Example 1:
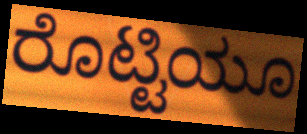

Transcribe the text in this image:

ರೊಟ್ಟಿಯೂ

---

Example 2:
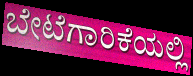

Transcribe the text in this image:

ಬೇಟೆಗಾರಿಕೆಯಲ್ಲಿ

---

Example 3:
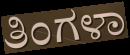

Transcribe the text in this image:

ತಿಂಗಳಾ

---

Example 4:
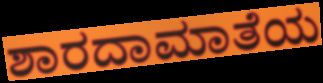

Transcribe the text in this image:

ಶಾರದಾಮಾತೆಯ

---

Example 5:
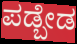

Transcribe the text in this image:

ಪಡ್ಬೇಡ